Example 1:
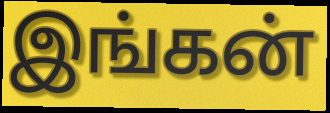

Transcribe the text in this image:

இங்கன்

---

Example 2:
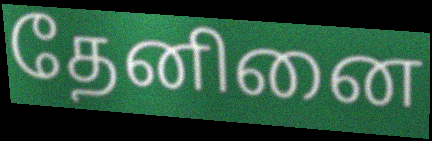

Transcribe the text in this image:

தேனினை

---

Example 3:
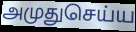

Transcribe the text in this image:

அமுதுசெய்ய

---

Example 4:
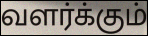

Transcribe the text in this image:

வளர்க்கும்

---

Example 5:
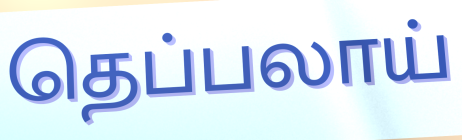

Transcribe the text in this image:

தெப்பலாய்